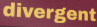
divergent